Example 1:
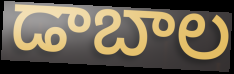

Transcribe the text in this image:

డాబాల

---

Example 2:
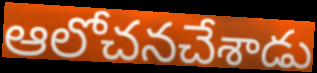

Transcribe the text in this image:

ఆలోచనచేశాడు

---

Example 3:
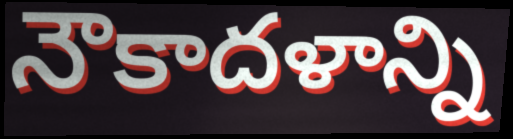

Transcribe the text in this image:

నౌకాదళాన్ని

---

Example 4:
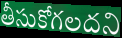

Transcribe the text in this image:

తీసుకోగలదని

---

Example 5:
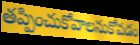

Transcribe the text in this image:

తప్పించుకోవాలనుకోవడం